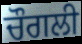
ਚੌਗਲੀ